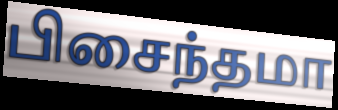
பிசைந்தமா